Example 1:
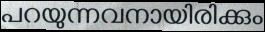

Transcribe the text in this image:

പറയുന്നവനായിരിക്കും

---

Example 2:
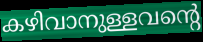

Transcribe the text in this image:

കഴിവാനുള്ളവന്റെ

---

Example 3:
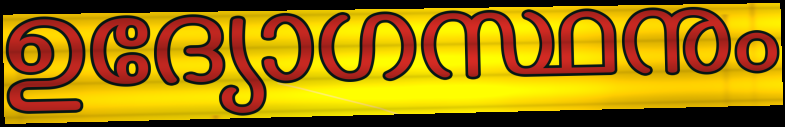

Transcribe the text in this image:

ഉദ്യോഗസ്ഥനും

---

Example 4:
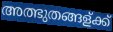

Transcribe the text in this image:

അത്ഭുതങ്ങള്ക്ക്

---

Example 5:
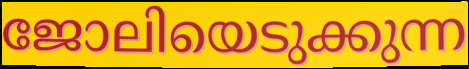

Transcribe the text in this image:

ജോലിയെടുക്കുന്ന